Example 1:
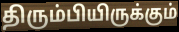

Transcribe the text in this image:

திரும்பியிருக்கும்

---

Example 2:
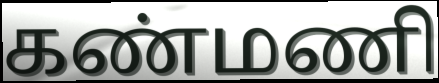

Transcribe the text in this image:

கண்மணி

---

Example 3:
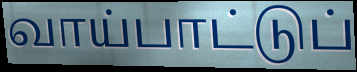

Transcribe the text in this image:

வாய்பாட்டுப்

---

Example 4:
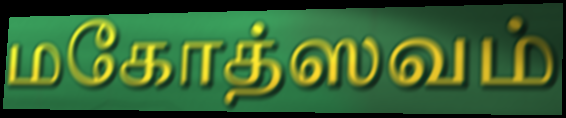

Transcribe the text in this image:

மகோத்ஸவம்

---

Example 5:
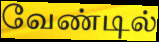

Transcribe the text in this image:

வேண்டில்